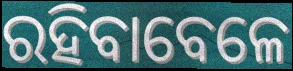
ରହିବାବେଳେ